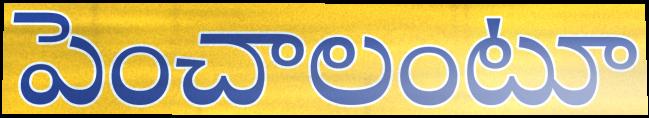
పెంచాలంటూ